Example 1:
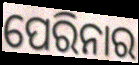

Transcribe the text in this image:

ପେରିନାର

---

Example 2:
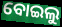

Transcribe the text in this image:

ବୋଇଲୁ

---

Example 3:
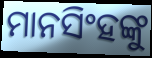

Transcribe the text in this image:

ମାନସିଂହଙ୍କୁ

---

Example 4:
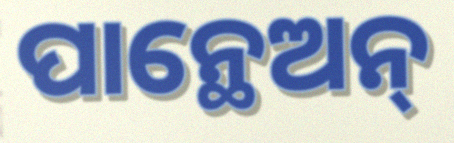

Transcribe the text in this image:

ପାନ୍ଥେଅନ୍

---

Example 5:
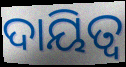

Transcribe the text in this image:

ଦାୟିତ୍ବ